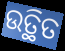
ଉତ୍ଥିତ